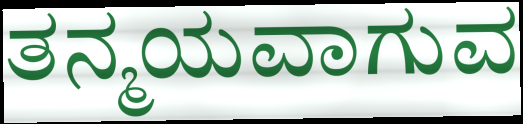
ತನ್ಮಯವಾಗುವ